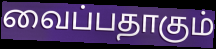
வைப்பதாகும்